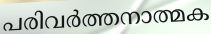
പരിവർത്തനാത്മക